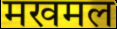
मखमल